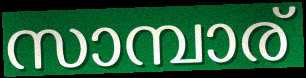
സാമ്പാര്